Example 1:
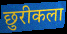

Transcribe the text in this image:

छुरीकला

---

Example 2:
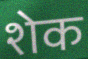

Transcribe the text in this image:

शेक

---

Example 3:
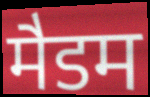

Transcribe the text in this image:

मैडम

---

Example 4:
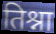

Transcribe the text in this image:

तिश्ना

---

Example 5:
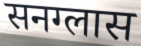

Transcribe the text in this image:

सनग्लास